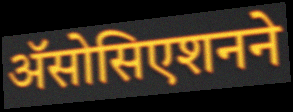
ॲसोसिएशनने